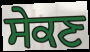
ਸੇਕਣ